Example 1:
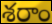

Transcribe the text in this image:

శరాం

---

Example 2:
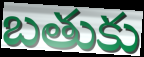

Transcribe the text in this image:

బతుకు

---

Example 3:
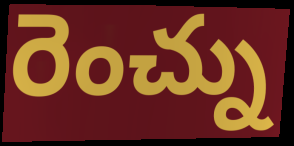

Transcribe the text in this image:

రెంచ్ను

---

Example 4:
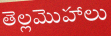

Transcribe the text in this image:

తెల్లమొహాలు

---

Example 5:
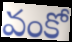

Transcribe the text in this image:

వంకో